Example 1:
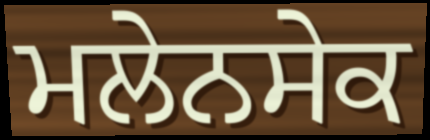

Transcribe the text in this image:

ਮਲੇਨਸੇਕ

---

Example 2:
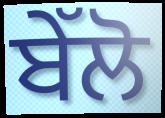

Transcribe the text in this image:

ਬੇੱਲੋ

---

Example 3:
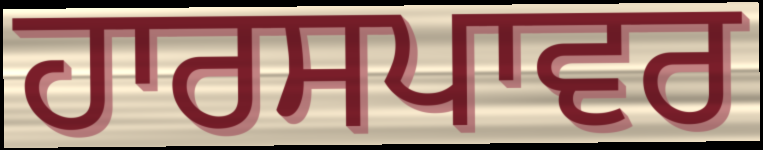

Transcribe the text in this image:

ਹਾਰਸਪਾਵਰ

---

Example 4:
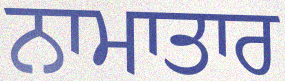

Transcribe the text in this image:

ਨਾਮਾਤਾਰ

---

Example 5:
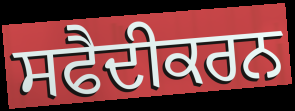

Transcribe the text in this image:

ਸਫੈਦੀਕਰਨ